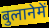
बुलानेमें